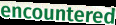
encountered